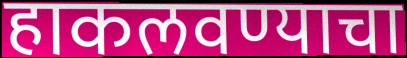
हाकलवण्याचा